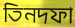
তিনদফা